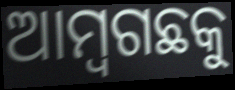
ଆମ୍ବଗଛକୁ